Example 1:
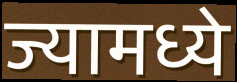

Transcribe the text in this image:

ज्यामध्ये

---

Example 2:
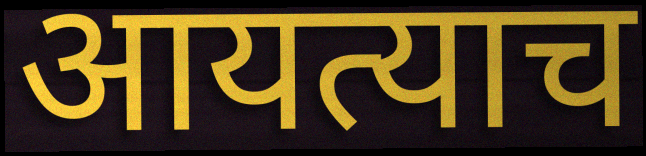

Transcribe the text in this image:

आयत्याच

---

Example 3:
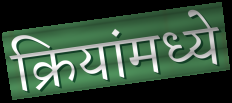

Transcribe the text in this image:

क्रियांमध्ये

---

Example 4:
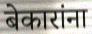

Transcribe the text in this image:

बेकारांना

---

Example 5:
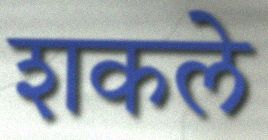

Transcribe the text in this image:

शकले